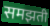
समझती